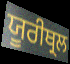
ਯੂਰੀਥ੍ਰਲ